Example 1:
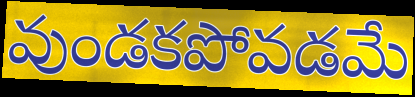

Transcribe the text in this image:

వుండకపోవడమే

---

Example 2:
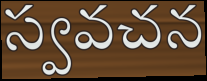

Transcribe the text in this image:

స్వవచన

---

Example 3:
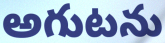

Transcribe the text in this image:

అగుటను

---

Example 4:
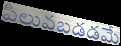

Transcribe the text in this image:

పిలువబడడమే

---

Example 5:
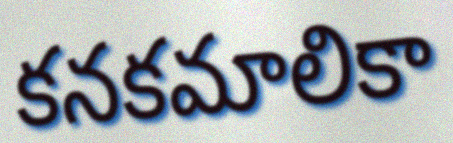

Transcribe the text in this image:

కనకమాలికా